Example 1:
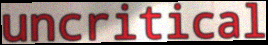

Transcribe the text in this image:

uncritical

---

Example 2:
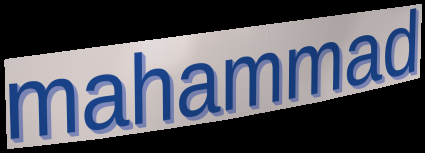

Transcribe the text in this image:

mahammad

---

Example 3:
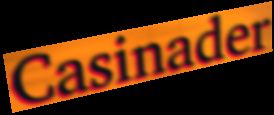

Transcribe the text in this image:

Casinader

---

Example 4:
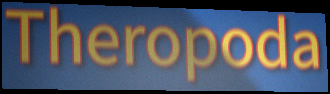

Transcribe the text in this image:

Theropoda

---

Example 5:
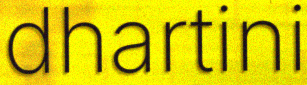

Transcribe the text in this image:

dhartini